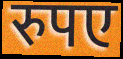
रुपए